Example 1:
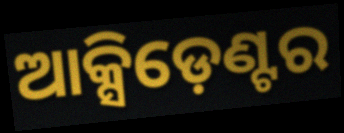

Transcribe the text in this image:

ଆକ୍ସିଡ଼େଣ୍ଟର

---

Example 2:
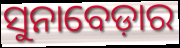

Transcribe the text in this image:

ସୁନାବେଡ଼ାର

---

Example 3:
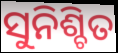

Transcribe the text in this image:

ସୁନିଶ୍ଚିତ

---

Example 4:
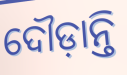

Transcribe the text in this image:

ଦୌଡ଼ାନ୍ତି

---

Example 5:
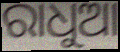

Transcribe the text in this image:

ରାଧୁଆ